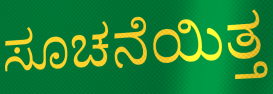
ಸೂಚನೆಯಿತ್ತ